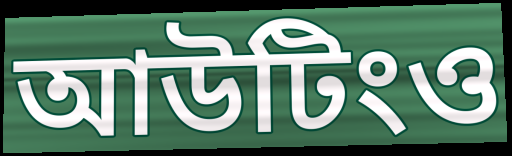
আউটিংও